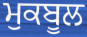
ਮੁਕਬੂਲ